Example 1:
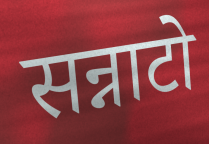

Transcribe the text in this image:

सन्नाटो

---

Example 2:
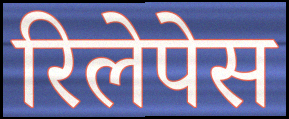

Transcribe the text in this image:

रिलेपेस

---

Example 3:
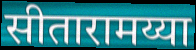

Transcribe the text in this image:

सीतारामय्या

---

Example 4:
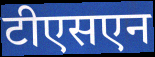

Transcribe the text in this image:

टीएसएन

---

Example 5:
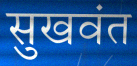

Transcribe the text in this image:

सुखवंत